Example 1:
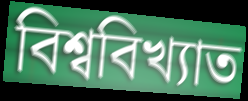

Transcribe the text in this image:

বিশ্ববিখ্যাত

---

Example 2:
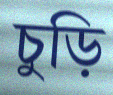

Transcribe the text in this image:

চুড়ি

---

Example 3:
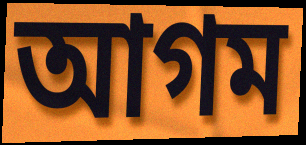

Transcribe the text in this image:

আগম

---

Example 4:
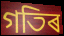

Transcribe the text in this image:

গতিৰ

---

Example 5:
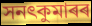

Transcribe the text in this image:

সনৎকুমাৰৰ